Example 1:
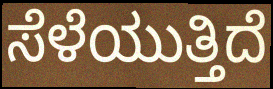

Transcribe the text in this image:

ಸೆಳೆಯುತ್ತಿದೆ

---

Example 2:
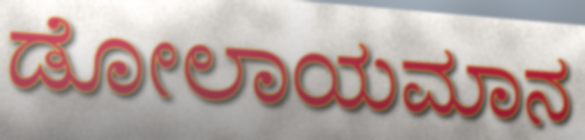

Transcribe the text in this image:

ಡೋಲಾಯಮಾನ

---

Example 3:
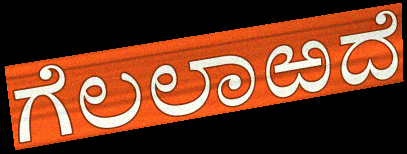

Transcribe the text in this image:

ಗೆಲಲಾಱದೆ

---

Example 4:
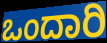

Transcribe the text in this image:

ಒಂದಾರಿ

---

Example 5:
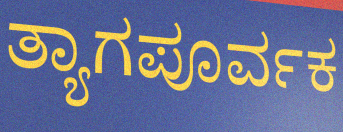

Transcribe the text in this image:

ತ್ಯಾಗಪೂರ್ವಕ